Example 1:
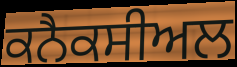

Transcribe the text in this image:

ਕਨੈਕਸੀਅਲ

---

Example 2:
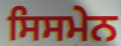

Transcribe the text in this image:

ਸਿਸਮੇਨ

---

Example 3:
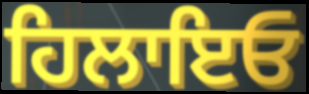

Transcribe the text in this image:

ਹਿਲਾਇਓ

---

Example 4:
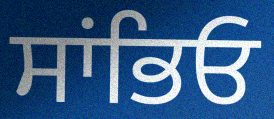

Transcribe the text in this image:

ਸਾਂਭਿਓ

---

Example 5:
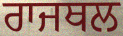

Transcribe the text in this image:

ਰਾਜਥਲ